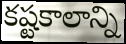
కష్టకాలాన్ని